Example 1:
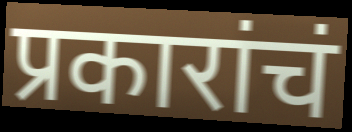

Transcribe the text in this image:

प्रकारांचं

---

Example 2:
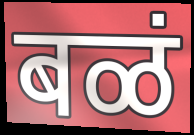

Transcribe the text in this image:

बळं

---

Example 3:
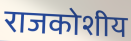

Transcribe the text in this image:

राजकोशीय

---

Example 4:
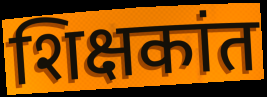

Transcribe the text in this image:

शिक्षकांत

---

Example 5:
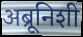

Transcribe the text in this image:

अब्रूनिशी